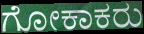
ಗೋಕಾಕರು